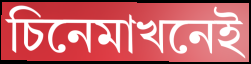
চিনেমাখনেই